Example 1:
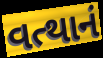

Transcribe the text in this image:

વત્થાનં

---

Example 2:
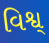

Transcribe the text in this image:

વિશ્વ્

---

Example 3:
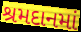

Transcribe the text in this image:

શ્રમદાનમાં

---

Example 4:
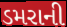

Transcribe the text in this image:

ડમરાની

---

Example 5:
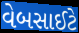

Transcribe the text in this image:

વેબસાઈટે